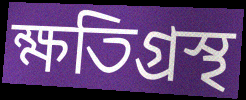
ক্ষতিগ্ৰস্থ